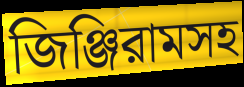
জিঞ্জিরামসহ